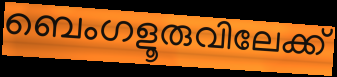
ബെംഗളൂരുവിലേക്ക്